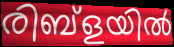
രിബ്ളയിൽ